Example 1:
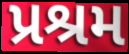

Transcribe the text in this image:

પ્રશ્રમ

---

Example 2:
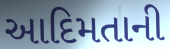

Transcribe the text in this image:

આદિમતાની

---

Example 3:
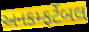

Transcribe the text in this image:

અનકમ્ફર્ટેબલ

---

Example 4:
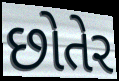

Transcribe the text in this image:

છોતેર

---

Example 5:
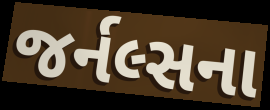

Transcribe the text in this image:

જર્નલ્સના